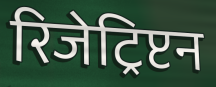
रिजेट्रिप्टन